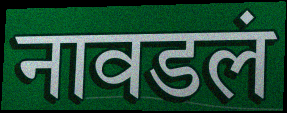
नावडलं